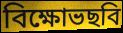
বিক্ষোভছবি